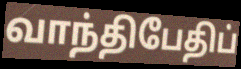
வாந்திபேதிப்